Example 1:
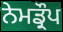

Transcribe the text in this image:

ਨੇਮਡ੍ਰੌਪ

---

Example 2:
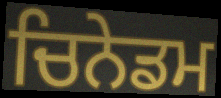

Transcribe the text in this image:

ਚਿਨੇਡਮ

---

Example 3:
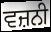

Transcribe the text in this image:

ਵਜ਼ਨੀ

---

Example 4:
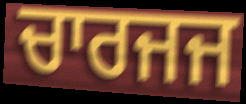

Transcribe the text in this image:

ਚਾਰਜਜ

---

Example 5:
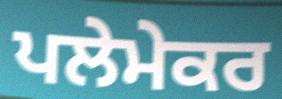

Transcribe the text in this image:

ਪਲੇਮੇਕਰ